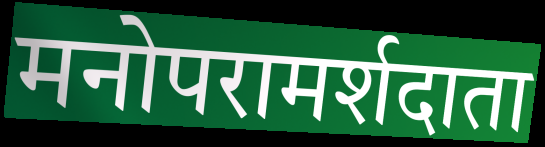
मनोपरामर्शदाता